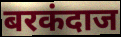
बरकंदाज